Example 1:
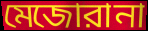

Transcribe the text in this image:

মেজোরানা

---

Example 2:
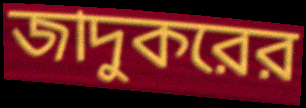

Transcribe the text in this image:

জাদুকরের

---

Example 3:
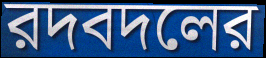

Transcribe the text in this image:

রদবদলের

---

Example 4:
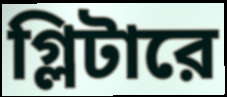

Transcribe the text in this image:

গ্লিটারে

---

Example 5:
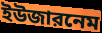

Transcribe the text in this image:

ইউজারনেম